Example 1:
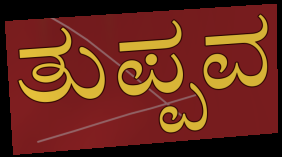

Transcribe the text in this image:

ತುಪ್ಪವ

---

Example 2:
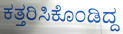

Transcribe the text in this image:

ಕತ್ತರಿಸಿಕೊಂಡಿದ್ದ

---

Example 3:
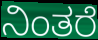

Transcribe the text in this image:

ನಿಂತರೆ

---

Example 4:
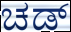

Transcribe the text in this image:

ಚಡ್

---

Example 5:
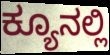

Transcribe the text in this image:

ಕ್ಯೂನಲ್ಲಿ